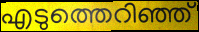
എടുത്തെറിഞ്ഞ്